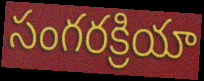
సంగరక్రియా